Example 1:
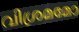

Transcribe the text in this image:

വിശ്രമമോ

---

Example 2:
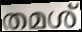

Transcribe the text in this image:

തമശ്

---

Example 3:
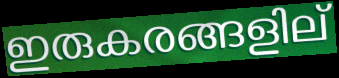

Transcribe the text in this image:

ഇരുകരങ്ങളില്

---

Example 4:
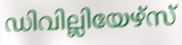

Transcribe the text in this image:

ഡിവില്ലിയേഴ്സ്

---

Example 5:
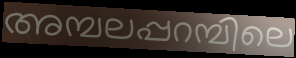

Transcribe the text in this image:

അമ്പലപ്പറമ്പിലെ